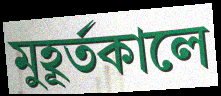
মুহূর্তকালে